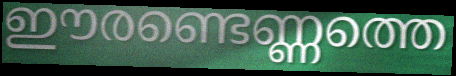
ഈരണ്ടെണ്ണത്തെ